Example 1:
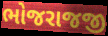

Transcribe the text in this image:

ભોજરાજજી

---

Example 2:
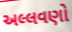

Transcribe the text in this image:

અલ્લવણો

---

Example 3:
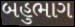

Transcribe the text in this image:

બહુભાગ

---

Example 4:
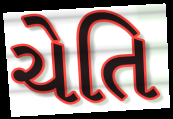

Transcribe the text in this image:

ચેતિ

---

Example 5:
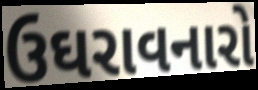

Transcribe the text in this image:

ઉઘરાવનારો